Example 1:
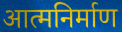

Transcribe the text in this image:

आत्मनिर्माण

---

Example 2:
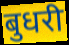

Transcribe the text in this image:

बुधरी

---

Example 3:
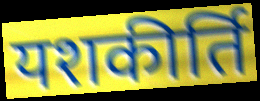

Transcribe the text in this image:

यशकीर्ति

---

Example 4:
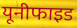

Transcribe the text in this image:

यूनीफाइड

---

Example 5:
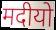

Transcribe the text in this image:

मदीयो